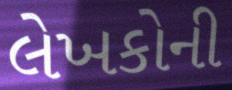
લેખકોની